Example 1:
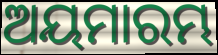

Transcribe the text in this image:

ଅୟମାରମ୍ଭ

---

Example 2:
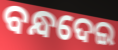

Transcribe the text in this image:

ବନ୍ଧଦେଇ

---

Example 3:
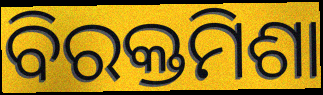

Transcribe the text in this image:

ବିରକ୍ତମିଶା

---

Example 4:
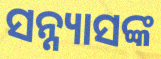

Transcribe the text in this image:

ସନ୍ନ୍ୟାସଙ୍କ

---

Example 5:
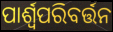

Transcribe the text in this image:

ପାର୍ଶ୍ଵପରିବର୍ତ୍ତନ